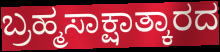
ಬ್ರಹ್ಮಸಾಕ್ಷಾತ್ಕಾರದ